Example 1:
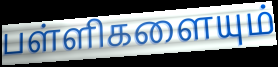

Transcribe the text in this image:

பள்ளிகளையும்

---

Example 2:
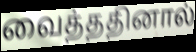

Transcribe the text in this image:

வைத்ததினால்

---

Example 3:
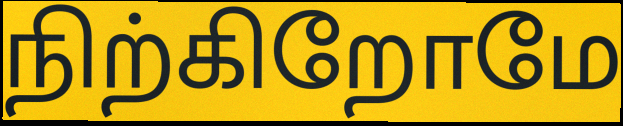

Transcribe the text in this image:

நிற்கிறோமே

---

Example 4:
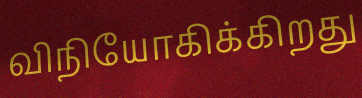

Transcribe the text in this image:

விநியோகிக்கிறது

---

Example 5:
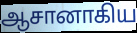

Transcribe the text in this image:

ஆசானாகிய